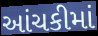
આંચકીમાં